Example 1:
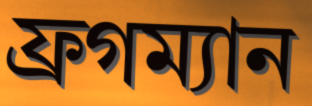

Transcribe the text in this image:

ফ্রগম্যান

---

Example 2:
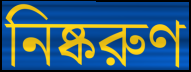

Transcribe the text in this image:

নিষ্করুণ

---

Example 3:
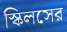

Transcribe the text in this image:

স্কিলসের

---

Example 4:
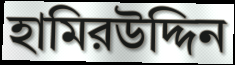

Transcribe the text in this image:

হামিরউদ্দিন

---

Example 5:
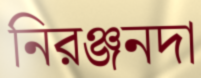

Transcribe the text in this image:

নিরঞ্জনদা